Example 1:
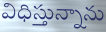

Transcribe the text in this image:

విధిస్తున్నాను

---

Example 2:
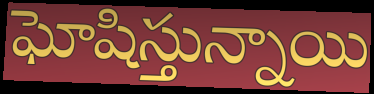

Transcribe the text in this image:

ఘోషిస్తున్నాయి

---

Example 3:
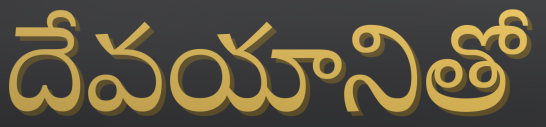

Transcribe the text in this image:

దేవయానితో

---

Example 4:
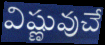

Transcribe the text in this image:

విష్ణువుచే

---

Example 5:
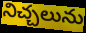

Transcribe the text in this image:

నిచ్చలును